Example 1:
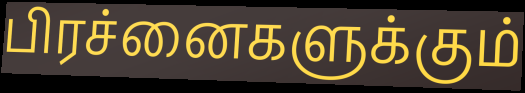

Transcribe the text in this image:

பிரச்னைகளுக்கும்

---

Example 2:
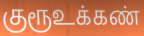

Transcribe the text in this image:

குரூஉக்கண்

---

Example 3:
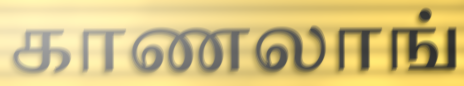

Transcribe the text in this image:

காணலாங்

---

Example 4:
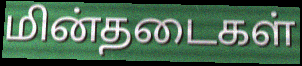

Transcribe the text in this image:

மின்தடைகள்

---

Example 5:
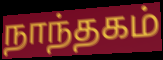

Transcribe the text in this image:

நாந்தகம்